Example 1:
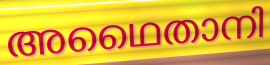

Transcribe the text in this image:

അഥൈതാനി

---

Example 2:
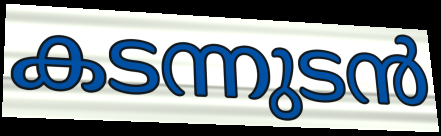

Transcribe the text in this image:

കടന്നുടൻ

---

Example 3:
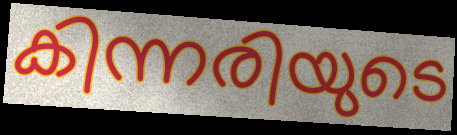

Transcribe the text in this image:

കിന്നരിയുടെ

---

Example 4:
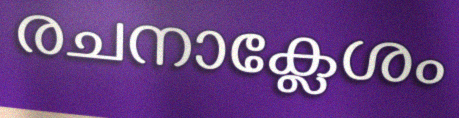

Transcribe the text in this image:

രചനാക്ലേശം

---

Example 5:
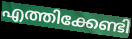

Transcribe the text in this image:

എത്തിക്കേണ്ടി